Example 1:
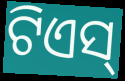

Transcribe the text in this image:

ଟିଏସ୍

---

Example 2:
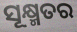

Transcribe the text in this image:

ସୂକ୍ଷ୍ମତର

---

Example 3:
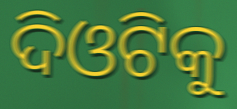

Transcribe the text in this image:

ଦିଓଟିକୁ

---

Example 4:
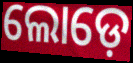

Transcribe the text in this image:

ଲୋଡ଼େ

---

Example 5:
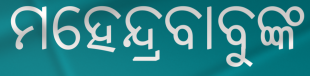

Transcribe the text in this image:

ମହେନ୍ଦ୍ରବାବୁଙ୍କ